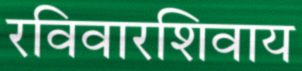
रविवारशिवाय